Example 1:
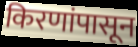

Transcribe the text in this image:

किरणांपासून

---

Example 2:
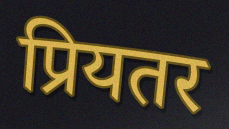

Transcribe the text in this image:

प्रियतर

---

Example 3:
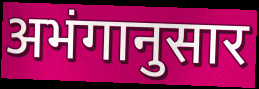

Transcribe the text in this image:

अभंगानुसार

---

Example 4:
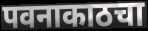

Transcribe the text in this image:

पवनाकाठचा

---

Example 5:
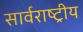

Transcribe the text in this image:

सार्वराष्ट्रीय